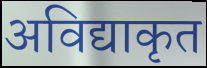
अविद्याकृत